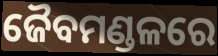
ଜୈବମଣ୍ଡଳରେ